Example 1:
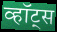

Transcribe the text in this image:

व्हॉट्‌स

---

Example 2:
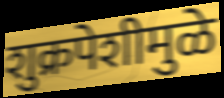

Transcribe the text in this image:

शुक्रपेशीमुळे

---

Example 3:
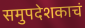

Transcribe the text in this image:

समुपदेशकाचं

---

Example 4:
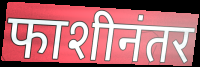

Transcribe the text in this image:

फाशीनंतर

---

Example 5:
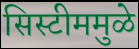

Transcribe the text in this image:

सिस्टीममुळे